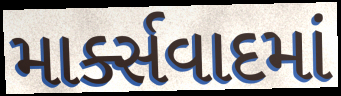
માર્ક્સવાદમાં